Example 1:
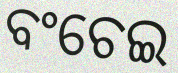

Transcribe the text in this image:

ବଂଚେଇ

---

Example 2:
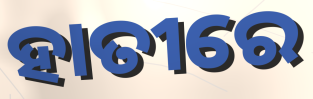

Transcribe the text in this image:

ହାତୀରେ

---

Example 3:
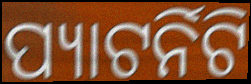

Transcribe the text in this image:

ପ୍ୟାଟର୍ନିଟି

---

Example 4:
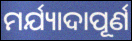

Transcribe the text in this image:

ମର୍ଯ୍ୟାଦାପୂର୍ଣ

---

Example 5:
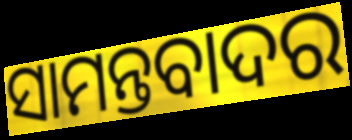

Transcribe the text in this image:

ସାମନ୍ତବାଦର